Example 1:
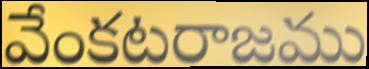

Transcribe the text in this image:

వేంకటరాజము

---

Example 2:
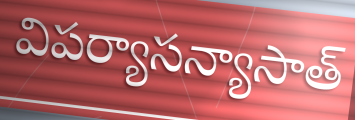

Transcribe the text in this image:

విపర్యాసన్యాసాత్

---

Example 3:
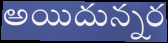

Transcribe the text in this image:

అయిదున్నర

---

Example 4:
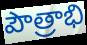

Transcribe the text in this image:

పౌత్రాభి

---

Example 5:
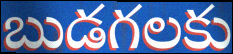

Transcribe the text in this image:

బుడగలకు